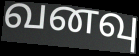
வனவு